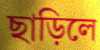
ছাড়িলে